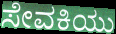
ಸೇವಕಿಯು